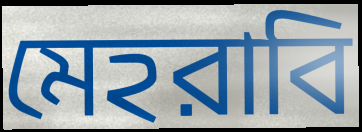
মেহরাবি